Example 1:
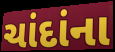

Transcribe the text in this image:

ચાંદાંના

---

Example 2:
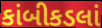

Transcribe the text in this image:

કાંબીકડલાં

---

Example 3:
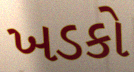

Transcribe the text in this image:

ખડકો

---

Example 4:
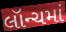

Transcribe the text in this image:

લૉન્ચમાં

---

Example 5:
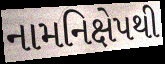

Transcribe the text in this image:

નામનિક્ષેપથી